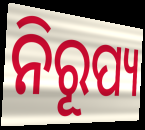
ନିରୂପ୍ୟ